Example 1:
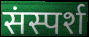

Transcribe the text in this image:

संस्पर्श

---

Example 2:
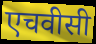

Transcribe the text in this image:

एचवीसी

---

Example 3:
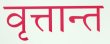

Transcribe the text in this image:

वृत्तान्त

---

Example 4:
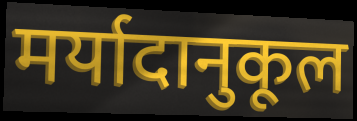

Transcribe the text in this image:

मर्यादानुकूल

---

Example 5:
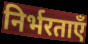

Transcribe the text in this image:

निर्भरताएँ